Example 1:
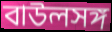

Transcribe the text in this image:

বাউলসঙ্গ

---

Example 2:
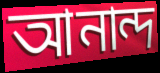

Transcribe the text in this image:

আনান্দ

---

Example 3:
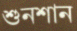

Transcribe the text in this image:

শুনশান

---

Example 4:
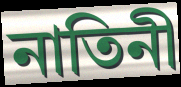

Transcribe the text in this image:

নাতিনী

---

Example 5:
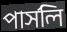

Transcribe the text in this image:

পার্সলি